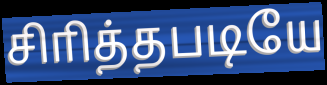
சிரித்தபடியே